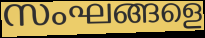
സംഘങ്ങളെ